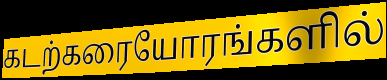
கடற்கரையோரங்களில்